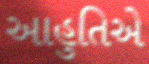
આહુતિએ